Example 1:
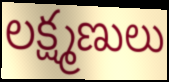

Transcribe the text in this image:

లక్ష్మణులు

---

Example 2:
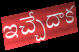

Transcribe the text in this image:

ఇచ్చేదాక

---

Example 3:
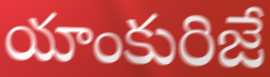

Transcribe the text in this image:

యాంకురిజే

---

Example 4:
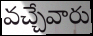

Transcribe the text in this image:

వచ్చేవారు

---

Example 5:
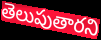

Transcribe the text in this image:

తెలుపుతారని